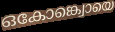
ഒകോങ്ക്വൊയെ